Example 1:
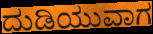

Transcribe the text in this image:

ದುಡಿಯುವಾಗ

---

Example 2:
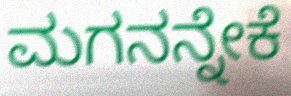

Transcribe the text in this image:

ಮಗನನ್ನೇಕೆ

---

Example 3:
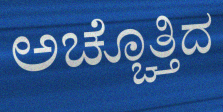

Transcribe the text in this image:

ಅಚ್ಚೊತ್ತಿದ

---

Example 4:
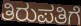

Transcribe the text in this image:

ತಿರುಪತಿಗೆ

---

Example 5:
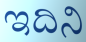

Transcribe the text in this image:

ಇದಿನಿ